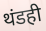
थंडही